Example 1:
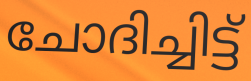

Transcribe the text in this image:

ചോദിച്ചിട്ട്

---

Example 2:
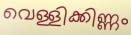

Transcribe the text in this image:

വെള്ളിക്കിണ്ണം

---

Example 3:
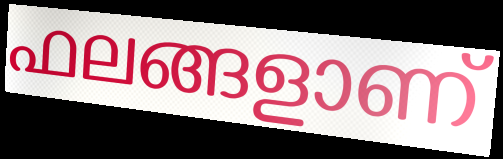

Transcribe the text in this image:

ഫലങ്ങളാണ്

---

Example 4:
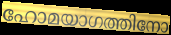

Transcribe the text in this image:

ഹോമയാഗത്തിനോ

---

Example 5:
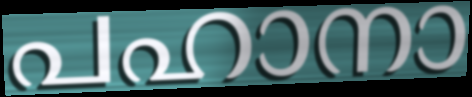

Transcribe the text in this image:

പഹാനാ